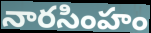
నారసింహం